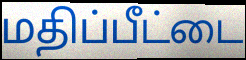
மதிப்பீட்டை